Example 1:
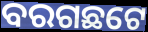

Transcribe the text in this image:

ବରଗଛଟେ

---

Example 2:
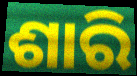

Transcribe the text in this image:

ଶାରି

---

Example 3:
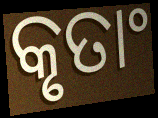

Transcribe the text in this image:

କୃତାଂ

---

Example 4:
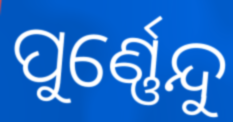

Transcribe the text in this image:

ପୁର୍ଣ୍ଣେନ୍ଦୁ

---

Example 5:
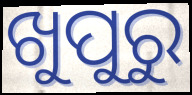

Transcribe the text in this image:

ଖୁପୁରୁ